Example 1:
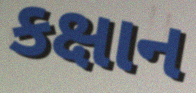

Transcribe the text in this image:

કક્ષાન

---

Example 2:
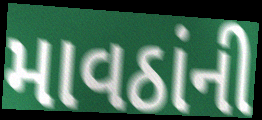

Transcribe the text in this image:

માવઠાંની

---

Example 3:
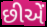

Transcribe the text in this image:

છીએં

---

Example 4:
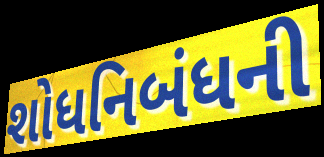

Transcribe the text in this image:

શોધનિબંધની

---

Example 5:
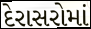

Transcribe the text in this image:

દેરાસરોમાં